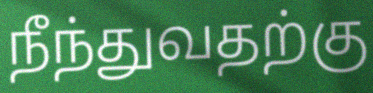
நீந்துவதற்கு